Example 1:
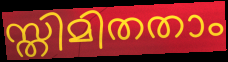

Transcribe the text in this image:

സ്തിമിതതാം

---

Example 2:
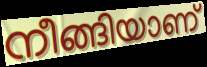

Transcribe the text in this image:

നീങ്ങിയാണ്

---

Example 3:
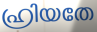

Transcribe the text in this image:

ഹ്രിയതേ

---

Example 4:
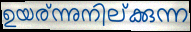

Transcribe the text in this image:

ഉയര്ന്നുനില്ക്കുന്ന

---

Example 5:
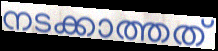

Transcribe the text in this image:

നടക്കാത്തത്